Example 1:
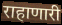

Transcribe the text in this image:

राहाणारी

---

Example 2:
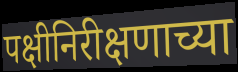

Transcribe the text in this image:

पक्षीनिरीक्षणाच्या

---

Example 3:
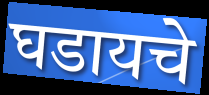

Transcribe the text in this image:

घडायचे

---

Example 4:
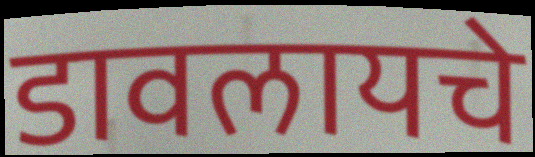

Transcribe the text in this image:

डावलायचे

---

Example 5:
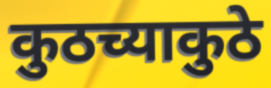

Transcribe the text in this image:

कुठच्याकुठे